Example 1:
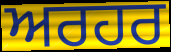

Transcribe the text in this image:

ਅਰਹਰ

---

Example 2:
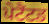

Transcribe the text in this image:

ਪੇਟੈਂਟਡ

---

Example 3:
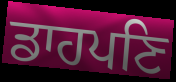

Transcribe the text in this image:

ਡਾਹਪਣਿ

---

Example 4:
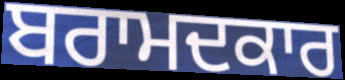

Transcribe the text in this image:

ਬਰਾਮਦਕਾਰ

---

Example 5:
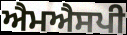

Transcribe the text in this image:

ਐਮਐਸਪੀ